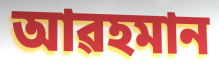
আৱহমান